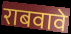
राबवावे